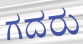
ಗದರು